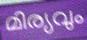
മിര്യവും